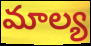
మాల్య